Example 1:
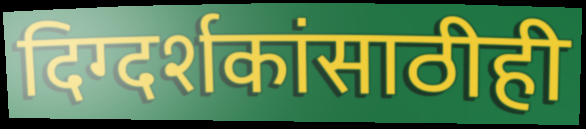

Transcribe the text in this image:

दिग्दर्शकांसाठीही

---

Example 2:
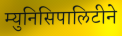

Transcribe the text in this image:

म्युनिसिपालिटीने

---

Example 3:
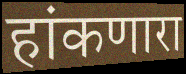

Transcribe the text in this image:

हांकणारा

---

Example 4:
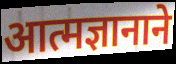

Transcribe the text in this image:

आत्मज्ञानाने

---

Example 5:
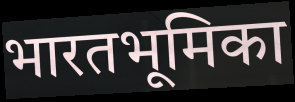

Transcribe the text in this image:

भारतभूमिका